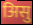
अिसु